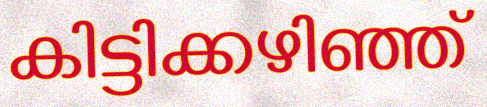
കിട്ടിക്കഴിഞ്ഞ്